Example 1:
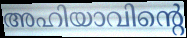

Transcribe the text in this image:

അഹിയാവിന്റെ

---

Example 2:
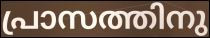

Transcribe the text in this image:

പ്രാസത്തിനു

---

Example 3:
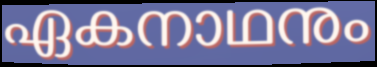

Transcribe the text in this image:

ഏകനാഥനും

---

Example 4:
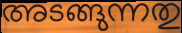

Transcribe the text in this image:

അടങ്ങുന്നതു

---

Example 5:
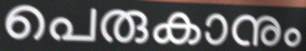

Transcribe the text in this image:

പെരുകാനും